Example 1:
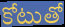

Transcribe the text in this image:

కోటుతో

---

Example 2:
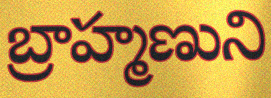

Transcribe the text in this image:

బ్రాహ్మణుని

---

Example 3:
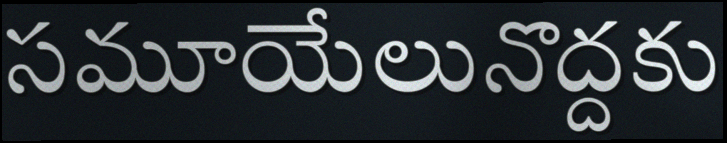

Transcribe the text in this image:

సమూయేలునొద్దకు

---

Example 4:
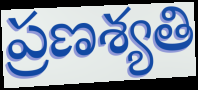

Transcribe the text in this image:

ప్రణశ్యతి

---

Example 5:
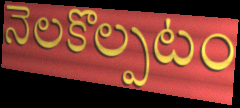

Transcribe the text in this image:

నెలకొల్పటం